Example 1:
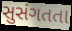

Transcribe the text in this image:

સુસંગતતા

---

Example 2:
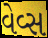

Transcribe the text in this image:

વેવ્સ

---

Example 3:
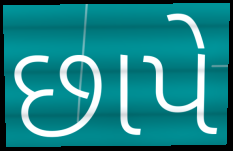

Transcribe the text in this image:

છાપે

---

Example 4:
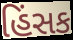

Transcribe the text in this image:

હિંસક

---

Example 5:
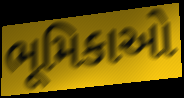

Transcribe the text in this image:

ભૂમિકાઓ